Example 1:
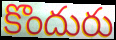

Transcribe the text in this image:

కొందురు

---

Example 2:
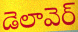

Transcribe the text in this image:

డెలావెర్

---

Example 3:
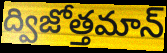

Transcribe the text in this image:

ద్విజోత్తమాన్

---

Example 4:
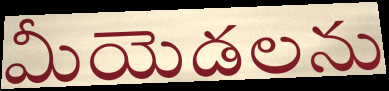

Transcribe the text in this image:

మీయెడలను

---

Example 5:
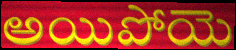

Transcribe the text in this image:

అయిపోయె